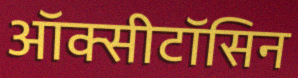
ऑक्सीटॉसिन